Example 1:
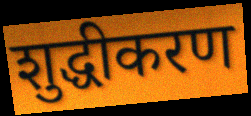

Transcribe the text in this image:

शुद्धीकरण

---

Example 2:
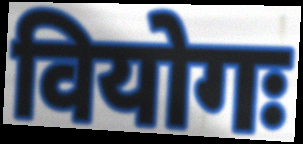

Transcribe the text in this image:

वियोगः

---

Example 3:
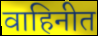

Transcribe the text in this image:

वाहिनीत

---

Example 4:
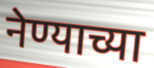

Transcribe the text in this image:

नेण्याच्या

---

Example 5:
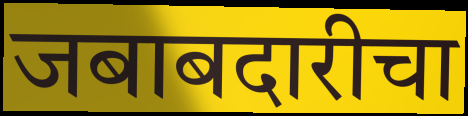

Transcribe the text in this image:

जबाबदारीचा